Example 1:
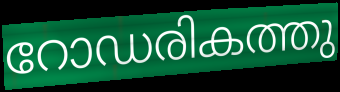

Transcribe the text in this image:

റോഡരികത്തു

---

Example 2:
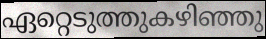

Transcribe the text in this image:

ഏറ്റെടുത്തുകഴിഞ്ഞു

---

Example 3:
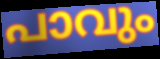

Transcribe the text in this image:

പാവും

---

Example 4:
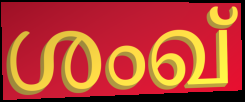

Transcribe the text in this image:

ശംഖ്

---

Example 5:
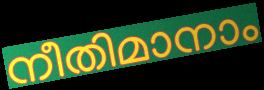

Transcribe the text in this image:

നീതിമാനാം